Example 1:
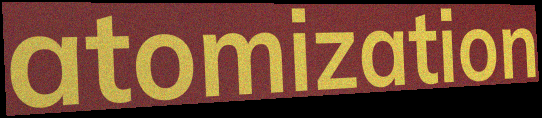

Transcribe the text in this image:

atomization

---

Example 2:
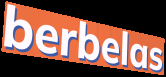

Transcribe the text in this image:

berbelas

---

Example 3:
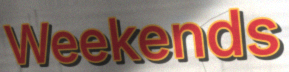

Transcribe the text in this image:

Weekends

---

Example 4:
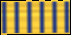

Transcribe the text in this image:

IIIIII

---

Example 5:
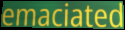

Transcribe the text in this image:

emaciated